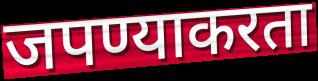
जपण्याकरता